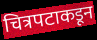
चित्रपटाकडून